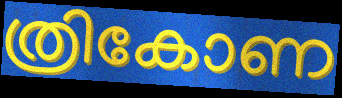
ത്രികോണ